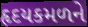
હૃદયકમળને